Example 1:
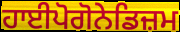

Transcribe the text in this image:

ਹਾਈਪੋਗੋਨੇਡਿਜ਼ਮ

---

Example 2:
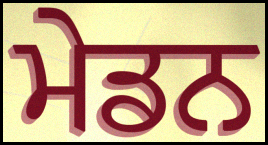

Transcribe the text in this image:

ਮੇਡਨ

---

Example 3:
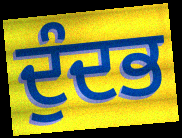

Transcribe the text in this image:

ਦੁੰਦਭ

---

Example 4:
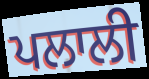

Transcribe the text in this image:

ਪਲਾਲੀ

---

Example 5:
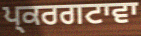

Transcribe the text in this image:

ਪ੍ਕਰਗਟਾਵਾ